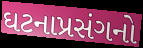
ઘટનાપ્રસંગનો